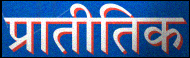
प्रातीतिक